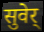
सुवेर्